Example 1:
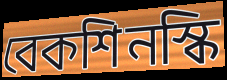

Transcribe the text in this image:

বেকশিনস্কি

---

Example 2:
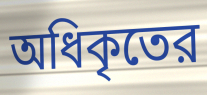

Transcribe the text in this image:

অধিকৃতের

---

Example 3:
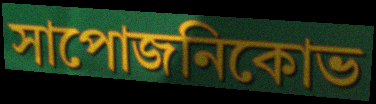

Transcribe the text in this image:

সাপোজনিকোভ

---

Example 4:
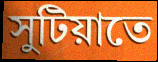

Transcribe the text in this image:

সুটিয়াতে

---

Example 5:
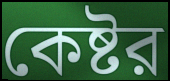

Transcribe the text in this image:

কেষ্টর